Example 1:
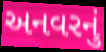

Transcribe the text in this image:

અનવરનું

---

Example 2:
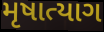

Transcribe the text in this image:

મૃષાત્યાગ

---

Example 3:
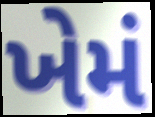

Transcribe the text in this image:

ખેમં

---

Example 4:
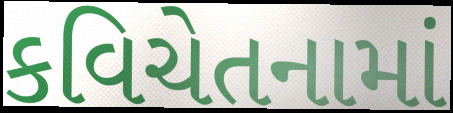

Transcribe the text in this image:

કવિચેતનામાં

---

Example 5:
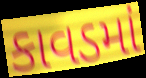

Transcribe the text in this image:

કાવડમાં